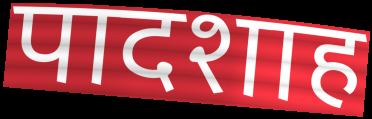
पादशाह